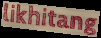
likhitang